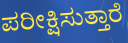
ಪರೀಕ್ಷಿಸುತ್ತಾರೆ